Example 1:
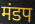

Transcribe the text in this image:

मंडप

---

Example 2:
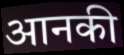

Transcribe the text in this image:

आनकी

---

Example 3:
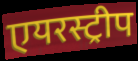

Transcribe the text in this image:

एयरस्ट्रीप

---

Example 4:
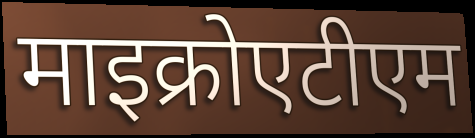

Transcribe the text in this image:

माइक्रोएटीएम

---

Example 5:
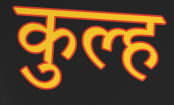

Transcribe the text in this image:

कुल्ह